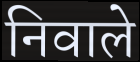
निवाले